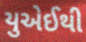
યુએઈથી